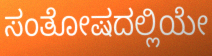
ಸಂತೋಷದಲ್ಲಿಯೇ